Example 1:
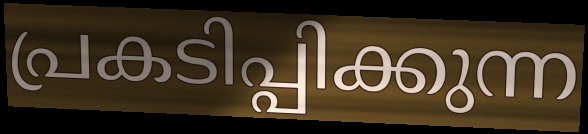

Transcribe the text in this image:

പ്രകടിപ്പിക്കുന്ന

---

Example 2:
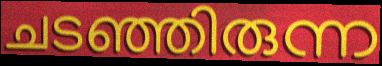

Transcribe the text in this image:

ചടഞ്ഞിരുന്ന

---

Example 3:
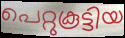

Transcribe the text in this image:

പെറ്റുകൂട്ടിയ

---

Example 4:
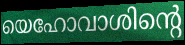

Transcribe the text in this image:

യെഹോവാശിന്റെ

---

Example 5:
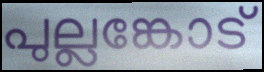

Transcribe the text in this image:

പുല്ലങ്കോട്